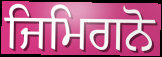
ਜਿਮਿਗਨੋ